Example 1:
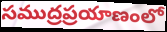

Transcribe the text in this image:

సముద్రప్రయాణంలో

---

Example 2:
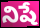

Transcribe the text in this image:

నిషే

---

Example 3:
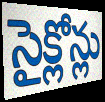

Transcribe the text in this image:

సైక్లోన్లు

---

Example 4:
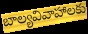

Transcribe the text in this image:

బాల్యవివాహాలకు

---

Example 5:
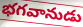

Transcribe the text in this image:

భగవానుడు